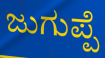
ಜುಗುಪ್ಪೆ